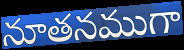
నూతనముగా